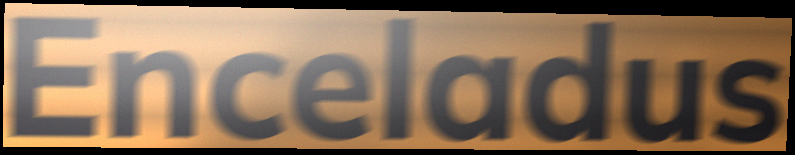
Enceladus